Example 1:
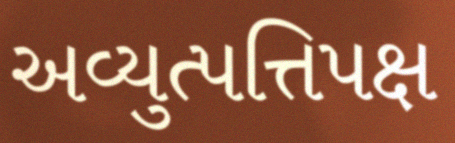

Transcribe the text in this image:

અવ્યુત્પત્તિપક્ષ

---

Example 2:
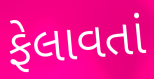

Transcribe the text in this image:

ફેલાવતાં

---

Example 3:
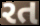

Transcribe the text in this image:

રત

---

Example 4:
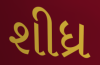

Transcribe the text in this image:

શીધ્ર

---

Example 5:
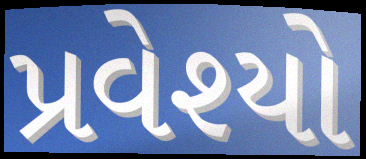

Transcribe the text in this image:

પ્રવેશ્યો